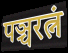
पञ्चरत्नं